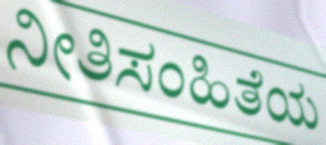
ನೀತಿಸಂಹಿತೆಯ